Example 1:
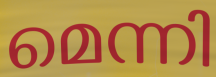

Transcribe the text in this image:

മെന്നി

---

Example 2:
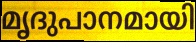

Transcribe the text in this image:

മൃദുപാനമായി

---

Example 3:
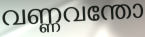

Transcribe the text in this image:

വണ്ണവന്തോ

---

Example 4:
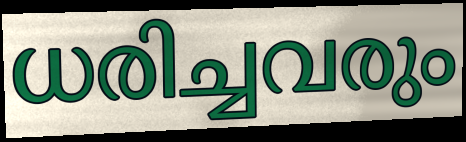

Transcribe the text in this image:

ധരിച്ചവരും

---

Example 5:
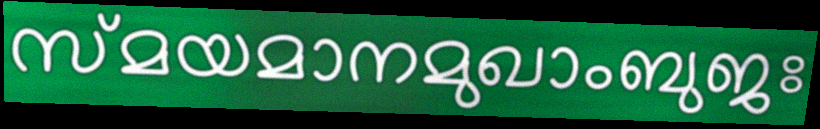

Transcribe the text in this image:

സ്മയമാനമുഖാംബുജഃ